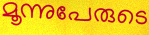
മൂന്നുപേരുടെ